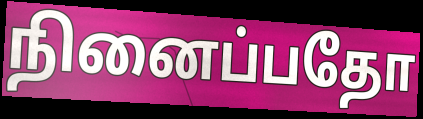
நினைப்பதோ